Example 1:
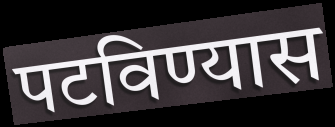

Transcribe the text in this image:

पटविण्यास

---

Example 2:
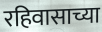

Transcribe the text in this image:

रहिवासाच्या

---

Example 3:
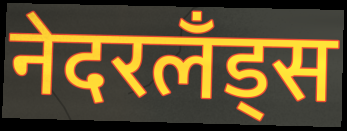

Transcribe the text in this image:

नेदरलँड्स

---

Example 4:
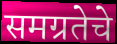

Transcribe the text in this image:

समग्रतेचे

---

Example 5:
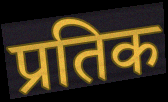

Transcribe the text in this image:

प्रतिक